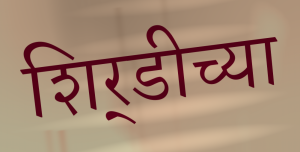
शिर्डीच्या